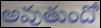
అవుతుందో